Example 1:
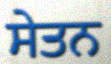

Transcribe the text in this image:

ਸੇਤਨ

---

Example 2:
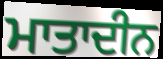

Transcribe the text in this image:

ਮਾਤਾਦੀਨ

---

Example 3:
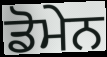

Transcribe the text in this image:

ਡੋਮੇਨ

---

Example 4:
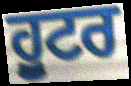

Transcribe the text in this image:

ਹੂਟਰ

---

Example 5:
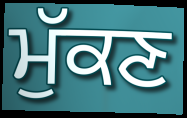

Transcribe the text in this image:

ਮੁੱਕਣ